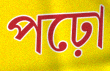
পঢ়ো